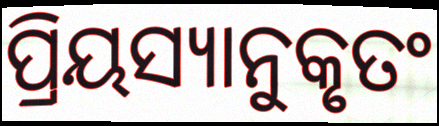
ପ୍ରିୟସ୍ୟାନୁକୃତଂ